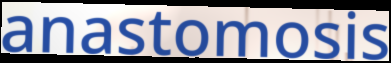
anastomosis